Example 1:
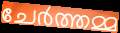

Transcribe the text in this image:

ചേർത്തമ്മ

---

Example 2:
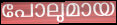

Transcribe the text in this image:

പോലുമായ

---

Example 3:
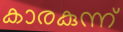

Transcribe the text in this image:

കാരകുന്ന്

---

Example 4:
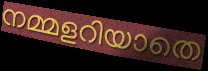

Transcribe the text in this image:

നമ്മളറിയാതെ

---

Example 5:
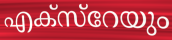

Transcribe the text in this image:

എക്സ്റേയും